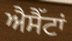
ਐਸੈੱਟਾਂ